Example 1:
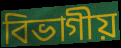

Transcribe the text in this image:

বিভাগীয়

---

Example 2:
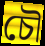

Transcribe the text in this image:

চৌ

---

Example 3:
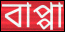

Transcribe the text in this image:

বাপ্পা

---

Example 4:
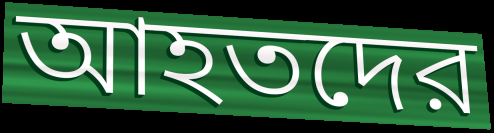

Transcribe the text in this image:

আহতদের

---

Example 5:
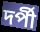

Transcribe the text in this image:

দর্পী